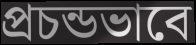
প্রচন্ডভাবে